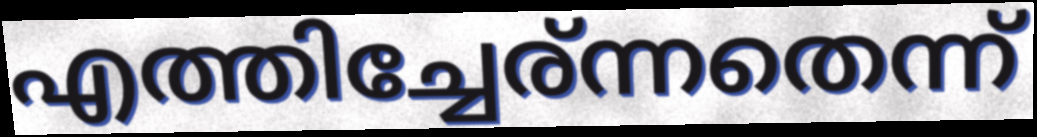
എത്തിച്ചേര്ന്നതെന്ന്